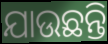
ଯାଉଛନ୍ତି